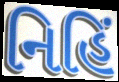
નિહિં